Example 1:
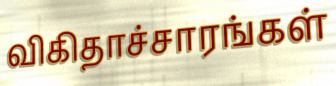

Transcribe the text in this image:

விகிதாச்சாரங்கள்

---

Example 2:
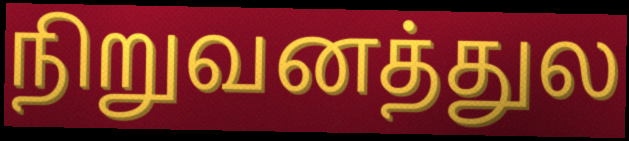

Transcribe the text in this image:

நிறுவனத்துல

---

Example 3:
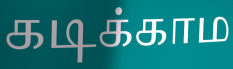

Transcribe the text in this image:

கடிக்காம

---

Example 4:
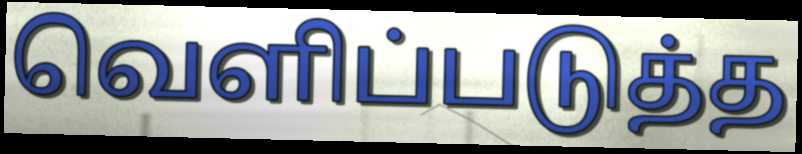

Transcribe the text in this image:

வெளிப்படுத்த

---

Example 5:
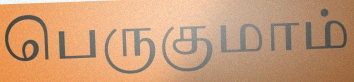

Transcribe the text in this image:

பெருகுமாம்